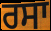
ਰਸਾ